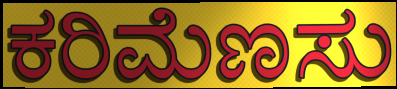
ಕರಿಮೆಣಸು